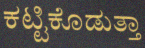
ಕಟ್ಟಿಕೊಡುತ್ತಾ